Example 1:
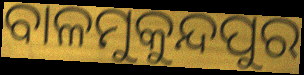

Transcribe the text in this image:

ବାଳମୁକୁନ୍ଦପୁର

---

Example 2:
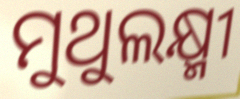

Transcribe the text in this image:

ମୁଥୁଲକ୍ଷ୍ମୀ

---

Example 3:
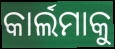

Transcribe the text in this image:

କାର୍ଲମାକୁ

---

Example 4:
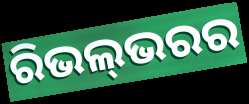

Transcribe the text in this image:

ରିଭଲ୍‍ଭରର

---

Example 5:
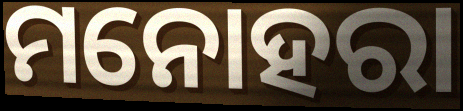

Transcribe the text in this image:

ମନୋହରା